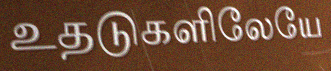
உதடுகளிலேயே